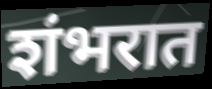
शंभरात